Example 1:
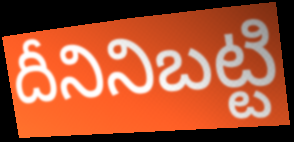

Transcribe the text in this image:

దీనినిబట్టి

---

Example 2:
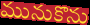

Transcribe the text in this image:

మునుకొను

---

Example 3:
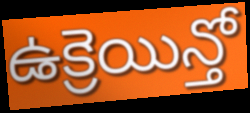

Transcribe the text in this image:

ఉక్రెయిన్తో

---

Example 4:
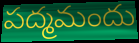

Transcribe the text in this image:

పద్మమందు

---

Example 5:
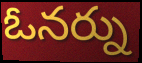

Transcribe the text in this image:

ఓనర్ను